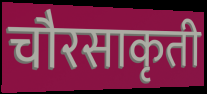
चौरसाकृती